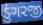
ડુંગરજી